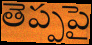
తెప్పపై